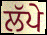
ਲੱਪੇ